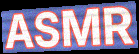
ASMR